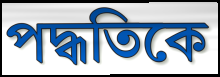
পদ্ধতিকে